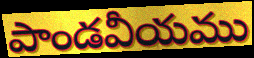
పాండవీయము